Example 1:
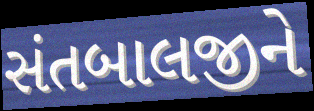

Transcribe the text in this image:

સંતબાલજીને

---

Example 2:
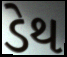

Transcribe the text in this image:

ડેથ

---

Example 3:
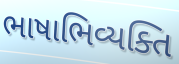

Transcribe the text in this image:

ભાષાભિવ્યક્તિ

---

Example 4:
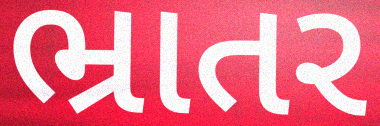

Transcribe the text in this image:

ભ્રાતર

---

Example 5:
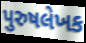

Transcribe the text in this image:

પુરુષલેખક